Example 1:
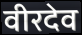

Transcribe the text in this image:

वीरदेव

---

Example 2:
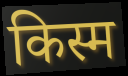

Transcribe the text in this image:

किस्म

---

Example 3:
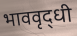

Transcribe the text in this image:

भाववृद्धी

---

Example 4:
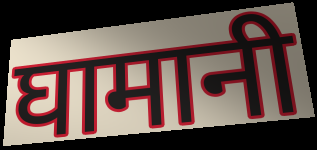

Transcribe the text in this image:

घामानी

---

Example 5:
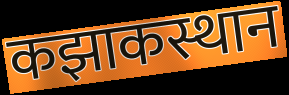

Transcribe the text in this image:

कझाकस्थान